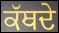
ਕੱਥਦੇ